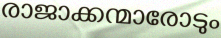
രാജാക്കന്മാരോടും